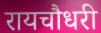
रायचौधरी